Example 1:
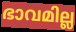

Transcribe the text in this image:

ഭാവമില്ല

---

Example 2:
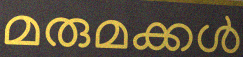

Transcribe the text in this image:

മരുമക്കൾ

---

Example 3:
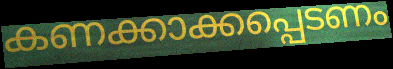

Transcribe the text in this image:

കണക്കാക്കപ്പെടണം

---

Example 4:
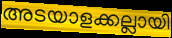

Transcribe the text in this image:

അടയാളക്കല്ലായി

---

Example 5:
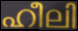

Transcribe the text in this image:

ഹീലി